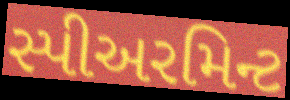
સ્પીઅરમિન્ટ